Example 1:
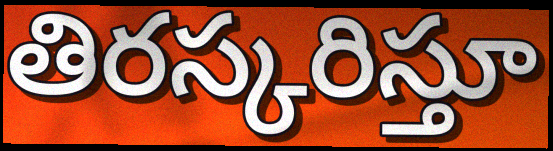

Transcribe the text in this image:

తిరస్కరిస్తూ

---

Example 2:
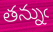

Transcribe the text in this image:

తన్నుఁ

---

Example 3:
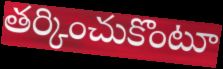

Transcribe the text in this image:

తర్కించుకొంటూ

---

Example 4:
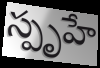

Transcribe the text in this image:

స్పృహే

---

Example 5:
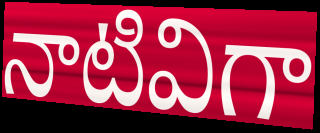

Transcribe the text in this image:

నాటివిగా